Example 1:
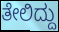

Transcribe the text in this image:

ತೇಲಿದ್ದು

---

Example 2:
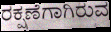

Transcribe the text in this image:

ರಕ್ಷಣೆಗಾಗಿರುವ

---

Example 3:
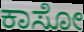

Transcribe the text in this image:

ಕಾಸೋ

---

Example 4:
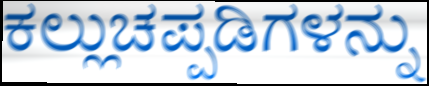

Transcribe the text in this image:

ಕಲ್ಲುಚಪ್ಪಡಿಗಳನ್ನು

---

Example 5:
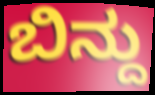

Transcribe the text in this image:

ಬಿನ್ದು